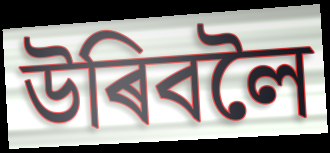
উৰিবলৈ